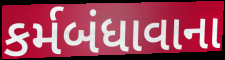
કર્મબંધાવાના